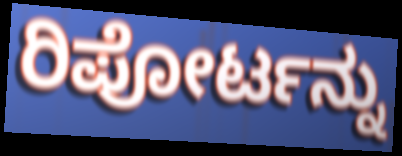
ರಿಪೋರ್ಟನ್ನು